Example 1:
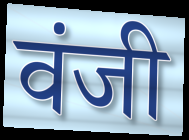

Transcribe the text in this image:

वंजी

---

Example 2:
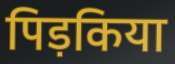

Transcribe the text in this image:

पिड़किया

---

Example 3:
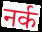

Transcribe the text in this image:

नर्क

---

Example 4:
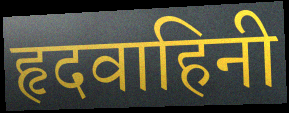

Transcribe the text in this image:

हृदवाहिनी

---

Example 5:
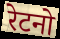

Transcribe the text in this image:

रेटनो